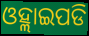
ଓହ୍ଲାଇପଡି